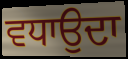
ਵਧਾਉਦਾ